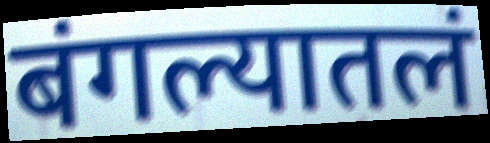
बंगल्यातलं